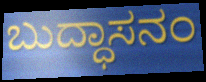
ಬುದ್ಧಾಸನಂ